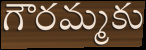
గౌరమ్మకు